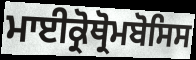
ਮਾਈਕ੍ਰੋਥ੍ਰੋਮਬੋਸਿਸ